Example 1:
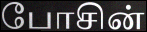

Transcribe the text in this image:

போசின்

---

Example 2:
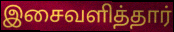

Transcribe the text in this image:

இசைவளித்தார்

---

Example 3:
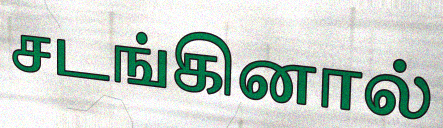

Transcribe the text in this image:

சடங்கினால்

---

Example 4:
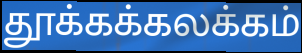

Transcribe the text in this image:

தூக்கக்கலக்கம்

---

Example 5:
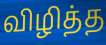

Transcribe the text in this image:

விழித்த